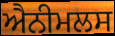
ਐਨੀਮਲਸ